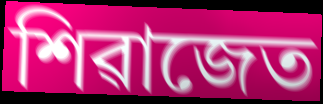
শিৱাজেত